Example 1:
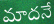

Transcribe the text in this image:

మాదనే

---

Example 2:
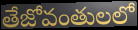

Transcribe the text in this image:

తేజోవంతులలో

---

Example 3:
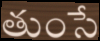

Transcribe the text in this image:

తుంసే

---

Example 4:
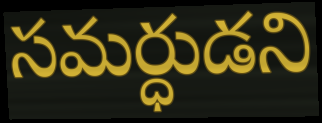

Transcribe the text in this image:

సమర్ధుడని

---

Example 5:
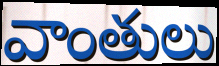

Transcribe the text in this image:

వాంతులు